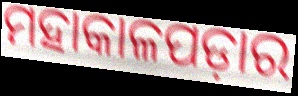
ମହାକାଳପଡ଼ାର